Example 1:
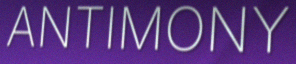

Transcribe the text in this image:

ANTIMONY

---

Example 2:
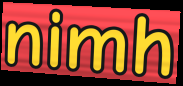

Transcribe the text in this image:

nimh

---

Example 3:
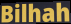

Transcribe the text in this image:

Bilhah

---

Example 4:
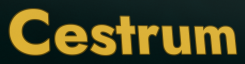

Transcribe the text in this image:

Cestrum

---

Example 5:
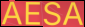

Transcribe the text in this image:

AESA